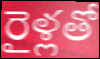
రైళ్లతో